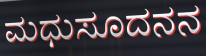
ಮಧುಸೂದನನ